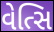
વેત્સિ